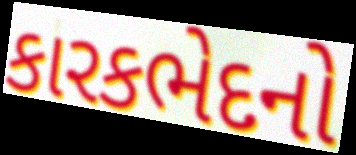
કારકભેદનો